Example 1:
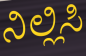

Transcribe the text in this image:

ನಿಲ್ಲಿಸಿ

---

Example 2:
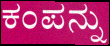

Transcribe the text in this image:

ಕಂಪನ್ನು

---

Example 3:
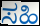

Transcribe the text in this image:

ಸಹಿ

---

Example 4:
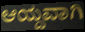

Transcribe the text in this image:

ಆಯ್ದವಾಗಿ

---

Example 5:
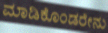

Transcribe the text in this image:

ಮಾಡಿಕೊಂಡರೇನು